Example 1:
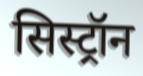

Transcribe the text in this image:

सिस्ट्रॉन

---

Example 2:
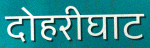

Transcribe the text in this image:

दोहरीघाट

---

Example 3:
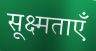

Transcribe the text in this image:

सूक्ष्मताएँ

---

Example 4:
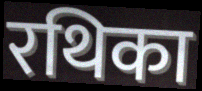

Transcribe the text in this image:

रथिका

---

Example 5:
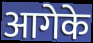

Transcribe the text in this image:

आगेके